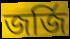
জর্জি